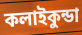
কলাইকুন্ডা